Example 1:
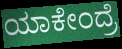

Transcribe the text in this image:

ಯಾಕೇಂದ್ರೆ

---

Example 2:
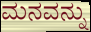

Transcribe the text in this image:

ಮನವನ್ನು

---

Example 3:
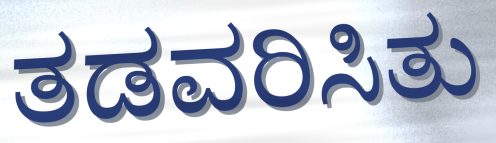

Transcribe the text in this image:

ತಡವರಿಸಿತು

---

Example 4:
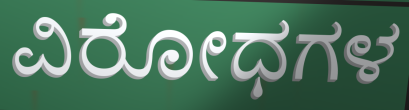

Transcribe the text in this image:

ವಿರೋಧಗಳ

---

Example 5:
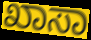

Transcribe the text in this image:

ಖಾಸಾ